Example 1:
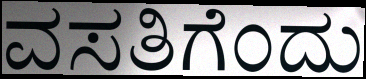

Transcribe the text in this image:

ವಸತಿಗೆಂದು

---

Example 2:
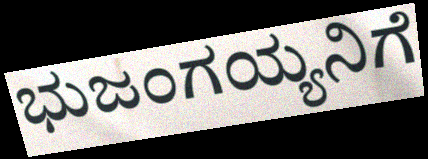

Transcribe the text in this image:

ಭುಜಂಗಯ್ಯನಿಗೆ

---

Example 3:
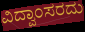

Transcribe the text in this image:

ವಿದ್ವಾಂಸರದು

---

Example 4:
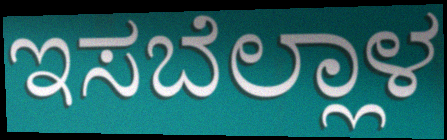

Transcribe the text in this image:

ಇಸಬೆಲ್ಲಾಳ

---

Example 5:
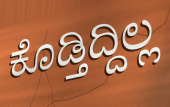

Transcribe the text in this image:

ಕೊಡ್ತಿದ್ದಿಲ್ಲ